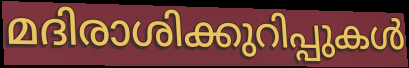
മദിരാശിക്കുറിപ്പുകൾ